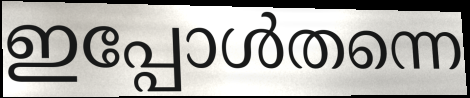
ഇപ്പോൾതന്നെ